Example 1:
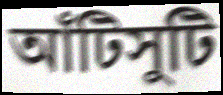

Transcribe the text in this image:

আঁটিসুটি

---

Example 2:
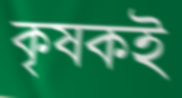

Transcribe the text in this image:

কৃষকই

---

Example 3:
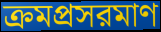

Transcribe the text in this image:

ক্রমপ্রসরমাণ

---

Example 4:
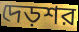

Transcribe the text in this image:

দেড়শর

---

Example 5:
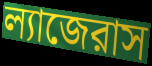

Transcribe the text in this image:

ল্যাজেরাস